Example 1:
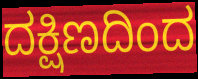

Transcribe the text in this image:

ದಕ್ಷಿಣದಿಂದ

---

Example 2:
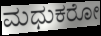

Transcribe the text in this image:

ಮಧುಕರೋ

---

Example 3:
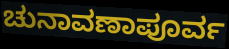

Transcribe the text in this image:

ಚುನಾವಣಾಪೂರ್ವ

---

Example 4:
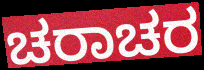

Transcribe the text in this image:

ಚರಾಚರ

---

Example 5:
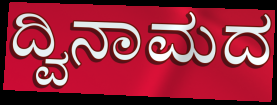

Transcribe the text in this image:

ದ್ವಿನಾಮದ